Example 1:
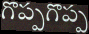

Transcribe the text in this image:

గొప్పగొప్ప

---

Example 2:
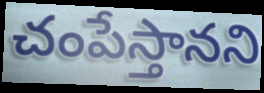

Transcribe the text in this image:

చంపేస్తానని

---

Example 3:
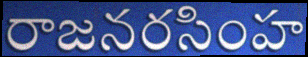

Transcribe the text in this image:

రాజనరసింహ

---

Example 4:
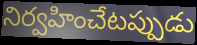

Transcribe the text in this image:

నిర్వహించేటప్పుడు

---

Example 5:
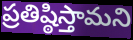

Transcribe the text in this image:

ప్రతిష్ఠిస్తామని